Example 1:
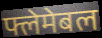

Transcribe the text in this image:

फ्लेमेबल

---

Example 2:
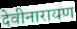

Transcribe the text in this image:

देवीनारायण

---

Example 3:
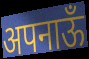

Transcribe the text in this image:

अपनाऊँ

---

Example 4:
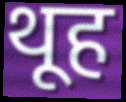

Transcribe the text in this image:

थूह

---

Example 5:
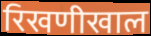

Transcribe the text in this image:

रिखणीखाल